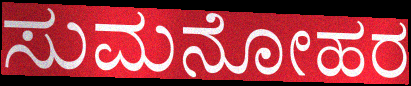
ಸುಮನೋಹರ